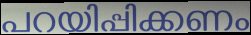
പറയിപ്പിക്കണം